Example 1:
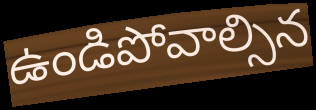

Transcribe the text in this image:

ఉండిపోవాల్సిన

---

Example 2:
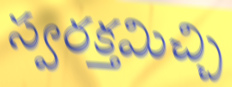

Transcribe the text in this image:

స్వరక్తమిచ్చి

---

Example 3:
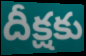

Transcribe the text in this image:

దీక్షకు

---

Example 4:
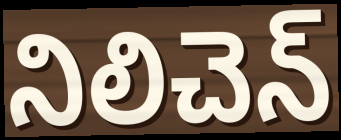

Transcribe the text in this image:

నిలిచెన్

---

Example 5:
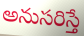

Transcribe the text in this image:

అనుసరిస్తే